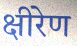
क्षीरेण